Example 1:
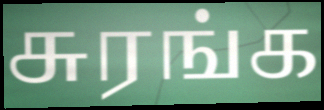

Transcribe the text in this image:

சுரங்க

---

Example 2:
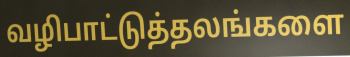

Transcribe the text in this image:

வழிபாட்டுத்தலங்களை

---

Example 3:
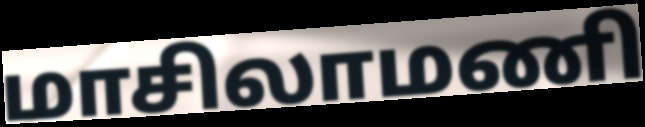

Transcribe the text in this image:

மாசிலாமணி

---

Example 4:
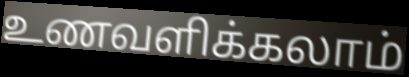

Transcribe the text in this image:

உணவளிக்கலாம்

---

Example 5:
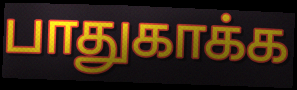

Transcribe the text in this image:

பாதுகாக்க